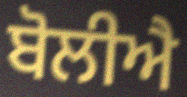
ਬੋਲੀਐ